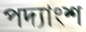
পদ্যাংশ